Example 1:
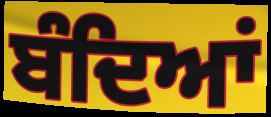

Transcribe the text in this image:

ਬੰਦਿਆਂ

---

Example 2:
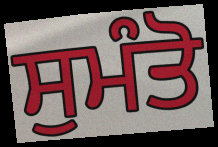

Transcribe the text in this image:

ਸੁਮੰਤੋ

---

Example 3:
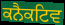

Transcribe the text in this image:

ਕਨੈਕਟਿਵ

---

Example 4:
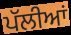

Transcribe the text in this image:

ਪੱਲੀਆਂ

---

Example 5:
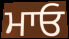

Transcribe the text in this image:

ਮਾਓ